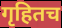
गृहितच